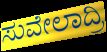
ಸುವೇಲಾದ್ರಿ